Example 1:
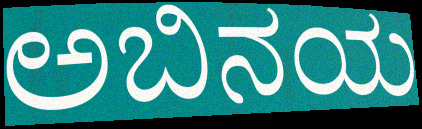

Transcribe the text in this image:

ಅಬಿನಯ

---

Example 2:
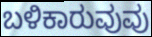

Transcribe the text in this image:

ಬಳಿಕಾರುವುವು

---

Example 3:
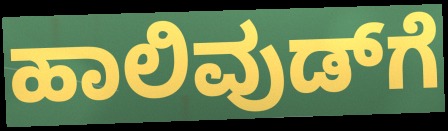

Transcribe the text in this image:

ಹಾಲಿವುಡ್‌ಗೆ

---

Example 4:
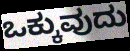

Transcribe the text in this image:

ಒಕ್ಕುವುದು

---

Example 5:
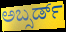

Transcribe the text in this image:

ಅಬ್ಸರ್ಡ್